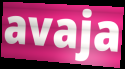
avaja